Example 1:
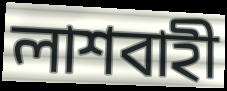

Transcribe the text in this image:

লাশবাহী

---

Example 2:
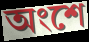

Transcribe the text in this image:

অংশে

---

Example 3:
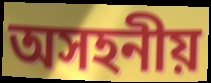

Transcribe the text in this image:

অসহনীয়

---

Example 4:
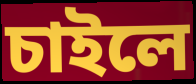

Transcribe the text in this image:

চাইলে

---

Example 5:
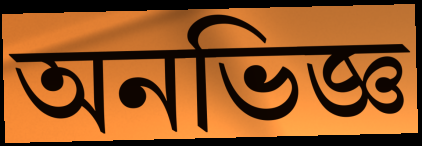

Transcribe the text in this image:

অনভিজ্ঞ